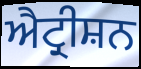
ਐਟ੍ਰੀਸ਼ਨ